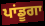
ਪਾਂਡੂਗਾ